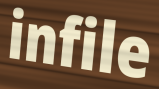
infile